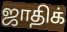
ஜாதிக்